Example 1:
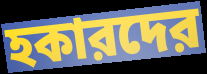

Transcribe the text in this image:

হকারদের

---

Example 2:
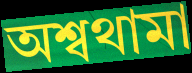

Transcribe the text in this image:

অশ্বথামা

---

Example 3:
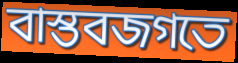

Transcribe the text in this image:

বাস্তবজগতে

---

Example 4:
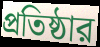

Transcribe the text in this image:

প্রতিষ্ঠার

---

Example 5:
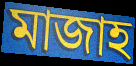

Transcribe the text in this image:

মাজাহ